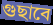
গুছাবে